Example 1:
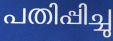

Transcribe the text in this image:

പതിപ്പിച്ചു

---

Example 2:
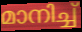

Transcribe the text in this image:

മാനിച്ച്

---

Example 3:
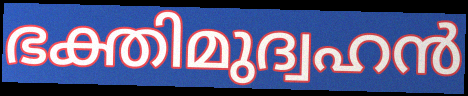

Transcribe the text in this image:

ഭക്തിമുദ്വഹൻ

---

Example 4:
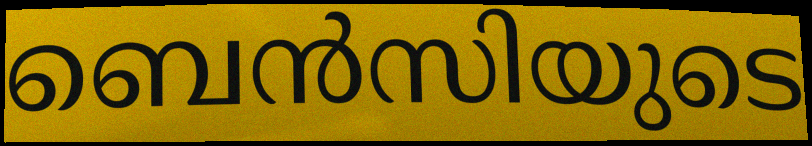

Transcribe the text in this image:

ബെൻസിയുടെ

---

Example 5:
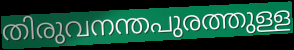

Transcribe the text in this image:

തിരുവനന്തപുരത്തുള്ള